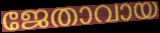
ജേതാവായ